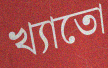
খ্যাতো